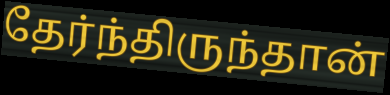
தேர்ந்திருந்தான்